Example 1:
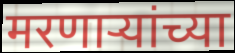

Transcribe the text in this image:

मरणाऱ्यांच्या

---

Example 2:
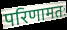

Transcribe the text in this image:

परिणामतः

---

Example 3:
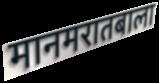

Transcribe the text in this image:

मानमरातबाला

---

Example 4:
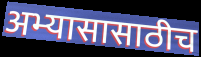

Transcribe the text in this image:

अभ्यासासाठीच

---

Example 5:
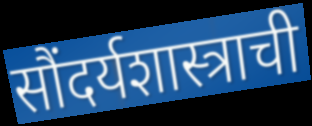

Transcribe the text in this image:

सौंदर्यशास्त्राची